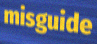
misguide